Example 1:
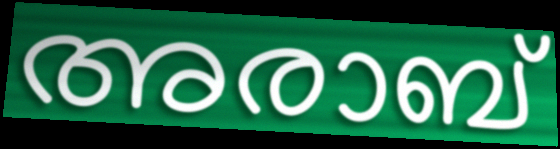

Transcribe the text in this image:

അരാബ്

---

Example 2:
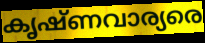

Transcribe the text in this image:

കൃഷ്ണവാര്യരെ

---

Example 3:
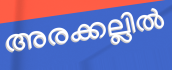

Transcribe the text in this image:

അരക്കല്ലിൽ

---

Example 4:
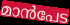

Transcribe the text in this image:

മാൻപേട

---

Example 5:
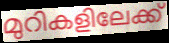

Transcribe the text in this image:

മുറികളിലേക്ക്